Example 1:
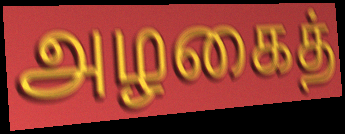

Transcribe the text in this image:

அழகைத்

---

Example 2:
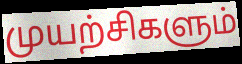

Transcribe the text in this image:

முயற்சிகளும்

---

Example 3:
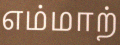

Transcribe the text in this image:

எம்மாற்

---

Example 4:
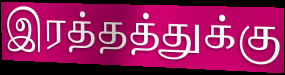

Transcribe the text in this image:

இரத்தத்துக்கு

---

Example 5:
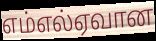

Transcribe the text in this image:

எம்எல்ஏவான